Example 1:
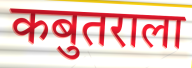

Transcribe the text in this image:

कबुतराला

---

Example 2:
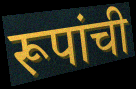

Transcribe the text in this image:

रूपांची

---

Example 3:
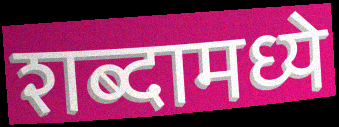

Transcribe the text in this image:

शब्दामध्ये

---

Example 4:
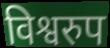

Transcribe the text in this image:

विश्वरुप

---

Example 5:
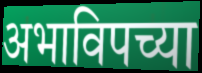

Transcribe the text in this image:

अभाविपच्या